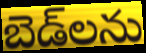
బెడ్‌లను